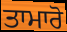
ਤਾਮਾਰੋ